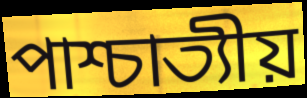
পাশ্চাত্যীয়